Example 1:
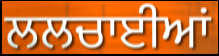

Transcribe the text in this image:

ਲਲਚਾਈਆਂ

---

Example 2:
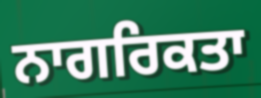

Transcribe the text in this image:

ਨਾਗਰਿਕਤਾ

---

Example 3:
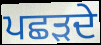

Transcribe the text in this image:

ਪਛੜਦੇ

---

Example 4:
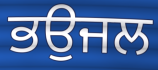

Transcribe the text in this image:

ਭਉਜਲ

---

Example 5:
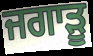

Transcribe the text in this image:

ਜਗਾੜੂ